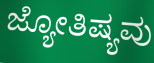
ಜ್ಯೋತಿಷ್ಯವು